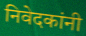
निवेदकांनी